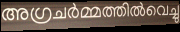
അഗ്രചർമ്മത്തിൽവെച്ചു